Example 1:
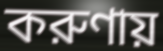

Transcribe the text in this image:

করুণায়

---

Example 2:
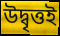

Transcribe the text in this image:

উদ্বৃত্তই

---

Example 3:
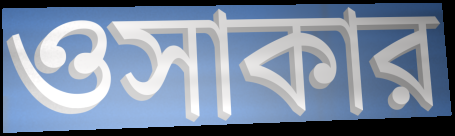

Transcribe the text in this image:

ওসাকার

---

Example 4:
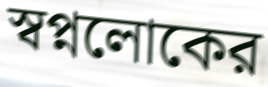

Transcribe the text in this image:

স্বপ্নলোকের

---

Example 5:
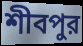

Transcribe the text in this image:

শীবপুর